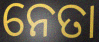
ନେତା